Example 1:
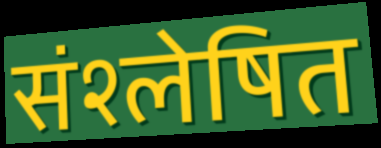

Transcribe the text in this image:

संश्लेषित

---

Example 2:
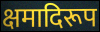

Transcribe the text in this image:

क्षमादिरूप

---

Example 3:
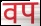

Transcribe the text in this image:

वप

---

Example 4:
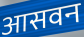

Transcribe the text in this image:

आसवन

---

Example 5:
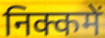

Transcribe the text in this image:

निक्कमें